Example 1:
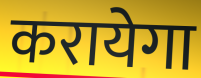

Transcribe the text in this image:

करायेगा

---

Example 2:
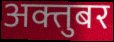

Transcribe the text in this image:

अक्तुबर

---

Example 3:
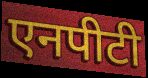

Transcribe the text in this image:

एनपीटी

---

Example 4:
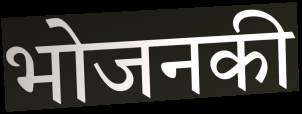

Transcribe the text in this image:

भोजनकी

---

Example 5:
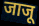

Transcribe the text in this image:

जाजू